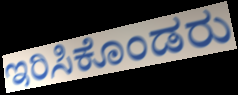
ಇರಿಸಿಕೊಂಡರು